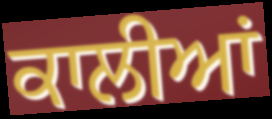
ਕਾਲੀਆਂ